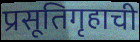
प्रसूतिगृहाची